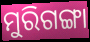
ମୁରିଗଙ୍ଗା